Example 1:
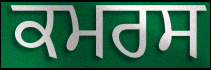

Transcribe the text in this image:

ਕਮਰਸ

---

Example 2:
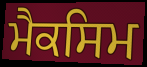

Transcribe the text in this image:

ਮੈਕਸਿਮ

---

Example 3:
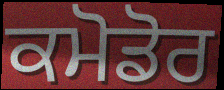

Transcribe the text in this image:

ਕਮੋਡੋਰ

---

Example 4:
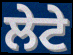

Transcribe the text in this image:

ਲੇਟੇ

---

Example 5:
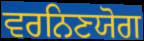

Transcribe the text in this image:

ਵਰਨਿਣਯੋਗ